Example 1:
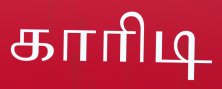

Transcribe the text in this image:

காரிடி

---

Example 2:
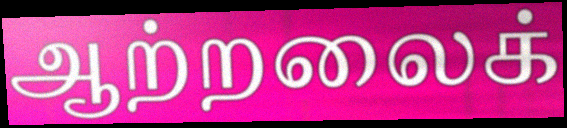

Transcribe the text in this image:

ஆற்றலைக்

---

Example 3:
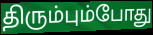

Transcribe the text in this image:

திரும்பும்போது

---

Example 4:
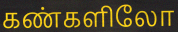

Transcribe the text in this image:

கண்களிலோ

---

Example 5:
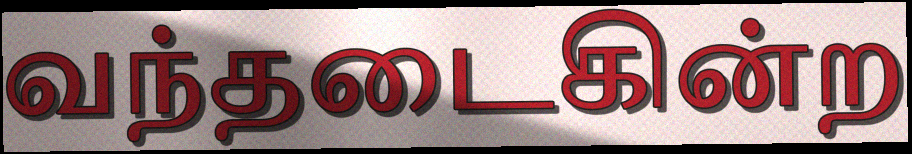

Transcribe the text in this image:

வந்தடைகின்ற